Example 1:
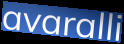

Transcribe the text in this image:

avaralli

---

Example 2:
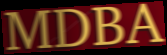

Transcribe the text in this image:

MDBA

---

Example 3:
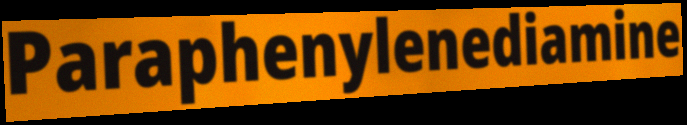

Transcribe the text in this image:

Paraphenylenediamine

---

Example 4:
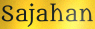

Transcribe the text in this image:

Sajahan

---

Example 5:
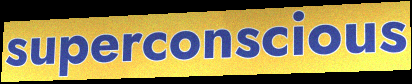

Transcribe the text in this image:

superconscious